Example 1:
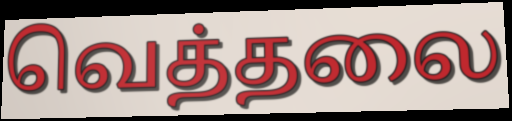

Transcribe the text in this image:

வெத்தலை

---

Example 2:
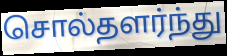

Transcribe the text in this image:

சொல்தளர்ந்து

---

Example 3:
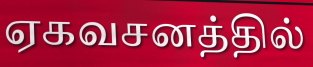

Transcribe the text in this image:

ஏகவசனத்தில்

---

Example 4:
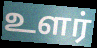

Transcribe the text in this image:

உளர்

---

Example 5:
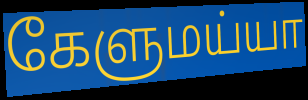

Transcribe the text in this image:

கேளுமய்யா